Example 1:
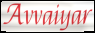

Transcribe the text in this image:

Avvaiyar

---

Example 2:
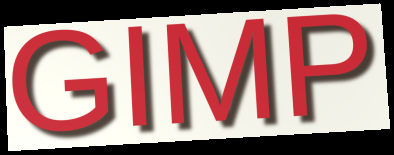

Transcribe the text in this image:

GIMP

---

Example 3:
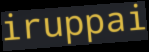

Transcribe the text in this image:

iruppai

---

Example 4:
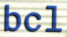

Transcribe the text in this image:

bcl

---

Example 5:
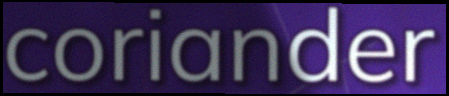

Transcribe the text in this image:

coriander